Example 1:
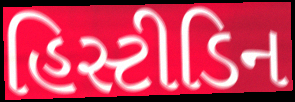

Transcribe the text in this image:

હિસ્ટીડિન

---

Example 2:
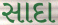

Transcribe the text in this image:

સાદા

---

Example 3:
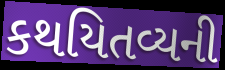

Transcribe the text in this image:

કથયિતવ્યની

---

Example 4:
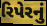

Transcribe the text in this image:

રિપેરનું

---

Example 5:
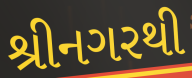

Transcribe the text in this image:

શ્રીનગરથી